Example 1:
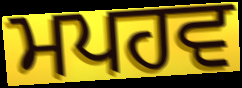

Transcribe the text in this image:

ਮਪਹਵ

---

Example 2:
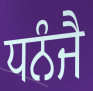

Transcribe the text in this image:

ਧਨੰਜੈ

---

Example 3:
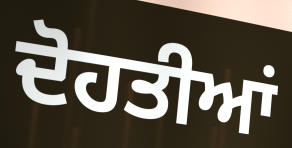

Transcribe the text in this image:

ਦੋਹਤੀਆਂ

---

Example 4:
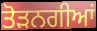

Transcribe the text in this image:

ਤੋੜਨਗੀਆਂ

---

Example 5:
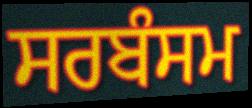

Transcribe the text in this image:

ਸਰਬੰਸਮ